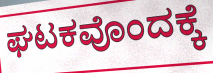
ಘಟಕವೊಂದಕ್ಕೆ